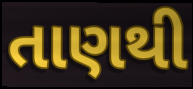
તાણથી